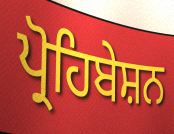
ਪ੍ਰੋਹਿਬੇਸ਼ਨ